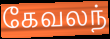
கேவலந்